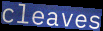
cleaves